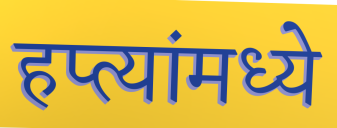
हप्त्यांमध्ये